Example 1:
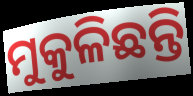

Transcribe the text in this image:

ମୁକୁଳିଛନ୍ତି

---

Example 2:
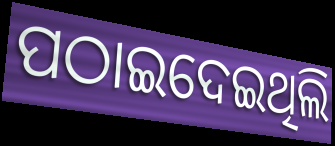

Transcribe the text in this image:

ପଠାଇଦେଇଥିଲି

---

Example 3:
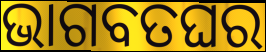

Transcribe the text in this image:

ଭାଗବତଘର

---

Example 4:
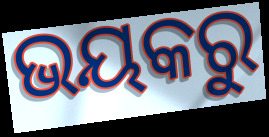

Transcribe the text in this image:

ଭୟକରୁ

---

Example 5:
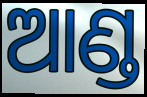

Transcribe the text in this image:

ଆଣ୍ଡ